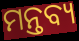
ମନ୍ତବ୍ଯ